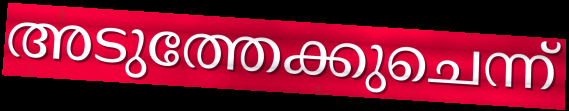
അടുത്തേക്കുചെന്ന്